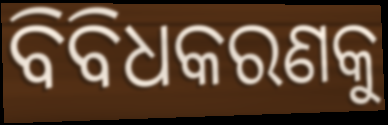
ବିବିଧକରଣକୁ